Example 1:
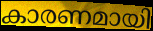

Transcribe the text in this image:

കാരണമായി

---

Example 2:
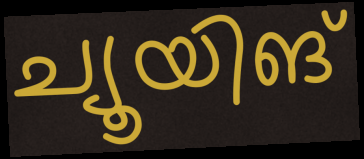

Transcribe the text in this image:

ച്യൂയിങ്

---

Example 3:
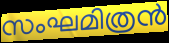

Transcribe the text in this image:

സംഘമിത്രൻ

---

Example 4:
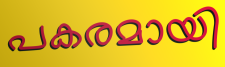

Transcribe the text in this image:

പകരമായി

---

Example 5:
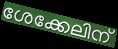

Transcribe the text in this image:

ശേക്കേലിന്